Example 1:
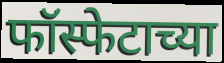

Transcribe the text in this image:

फॉस्फेटाच्या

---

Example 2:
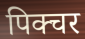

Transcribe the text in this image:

पिक्चर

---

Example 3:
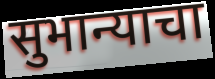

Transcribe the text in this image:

सुभान्याचा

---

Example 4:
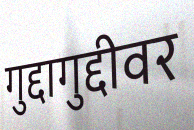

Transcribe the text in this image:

गुद्दागुद्दीवर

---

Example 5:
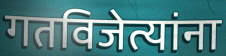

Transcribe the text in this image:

गतविजेत्यांना